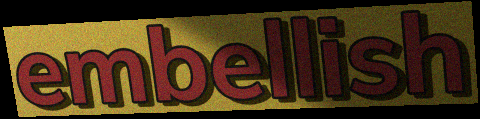
embellish